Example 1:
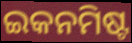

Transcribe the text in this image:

ଇକନମିଷ୍ଟ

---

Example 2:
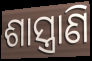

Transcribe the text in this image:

ଶାସ୍ତ୍ରାଣି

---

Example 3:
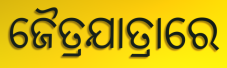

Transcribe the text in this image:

ଜୈତ୍ରଯାତ୍ରାରେ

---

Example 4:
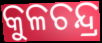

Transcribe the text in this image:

କୁଳଚନ୍ଦ୍ର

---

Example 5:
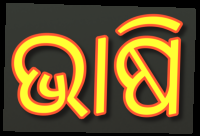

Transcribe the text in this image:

ଭାଷି